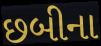
છબીના